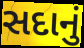
સદાનું